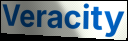
Veracity